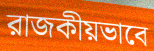
রাজকীয়ভাবে